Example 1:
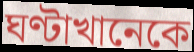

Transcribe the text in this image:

ঘণ্টাখানেকে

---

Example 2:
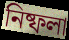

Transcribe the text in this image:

নিষ্ফলা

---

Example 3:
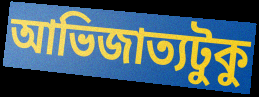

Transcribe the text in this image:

আভিজাত্যটুকু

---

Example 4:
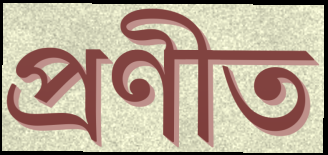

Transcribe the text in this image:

প্রণীত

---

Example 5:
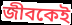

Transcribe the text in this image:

জীবকেই